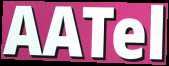
AATel